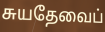
சுயதேவைப்